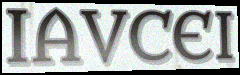
IAVCEI